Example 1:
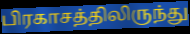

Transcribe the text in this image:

பிரகாசத்திலிருந்து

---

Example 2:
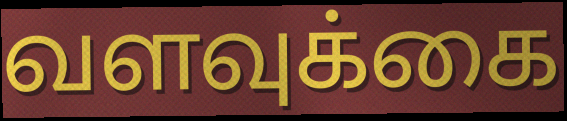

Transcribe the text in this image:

வளவுக்கை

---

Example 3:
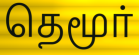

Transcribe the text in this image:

தெமூர்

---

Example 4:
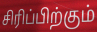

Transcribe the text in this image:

சிரிப்பிற்கும்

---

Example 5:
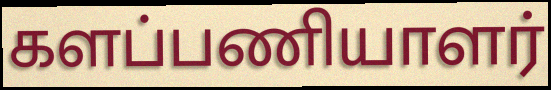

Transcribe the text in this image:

களப்பணியாளர்